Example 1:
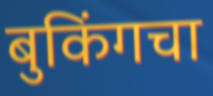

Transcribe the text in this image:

बुकिंगचा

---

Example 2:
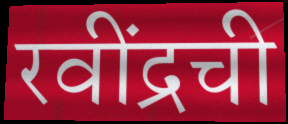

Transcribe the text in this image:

रवींद्रची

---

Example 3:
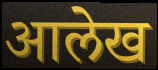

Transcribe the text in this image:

आलेख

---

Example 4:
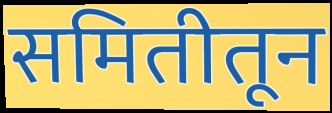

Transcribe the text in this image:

समितीतून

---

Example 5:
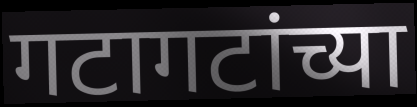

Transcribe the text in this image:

गटागटांच्या